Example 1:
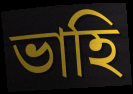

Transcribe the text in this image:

ভাহি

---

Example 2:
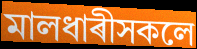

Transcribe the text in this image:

মালধাৰীসকলে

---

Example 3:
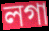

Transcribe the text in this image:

লগা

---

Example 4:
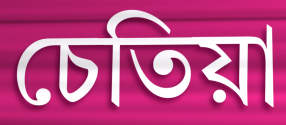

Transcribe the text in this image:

চেতিয়া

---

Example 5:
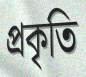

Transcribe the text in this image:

প্ৰকৃতি